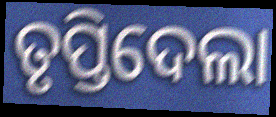
ତୃପ୍ତିଦେଲା